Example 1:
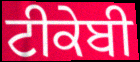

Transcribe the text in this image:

ਟੀਕੇਬੀ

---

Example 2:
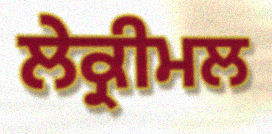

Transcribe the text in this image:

ਲੇਕ੍ਰੀਮਲ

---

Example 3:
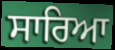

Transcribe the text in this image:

ਸਾਰਿਆ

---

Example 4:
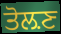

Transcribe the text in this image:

ਤੋਲ਼ਣ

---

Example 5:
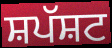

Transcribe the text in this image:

ਸ਼ਪੱਸ਼ਟ